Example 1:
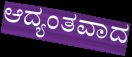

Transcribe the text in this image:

ಆದ್ಯಂತವಾದ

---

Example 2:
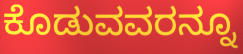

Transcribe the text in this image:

ಕೊಡುವವರನ್ನೂ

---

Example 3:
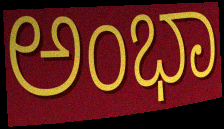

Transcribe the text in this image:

ಅಂಭಾ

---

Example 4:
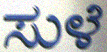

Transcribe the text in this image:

ಸುಳೆ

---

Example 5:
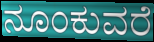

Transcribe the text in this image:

ನೂಂಕುವರೆ